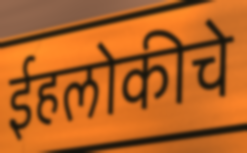
ईहलोकीचे